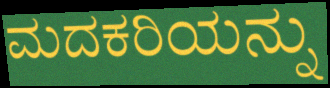
ಮದಕರಿಯನ್ನು